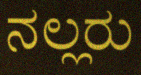
ನಲ್ಲರು